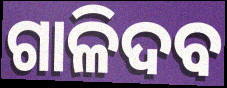
ଗାଳିଦବ